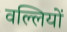
वल्लियों